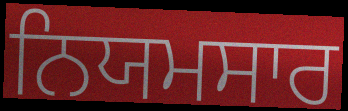
ਨਿਯਮਸਾਰ